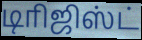
டிரிஜிஸ்ட்